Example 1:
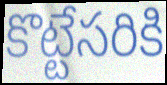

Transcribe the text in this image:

కొట్టేసరికి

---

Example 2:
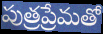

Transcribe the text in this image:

పుత్రప్రేమతో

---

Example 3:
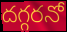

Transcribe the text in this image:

దగ్గరనో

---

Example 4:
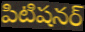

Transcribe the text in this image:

పిటిషనర్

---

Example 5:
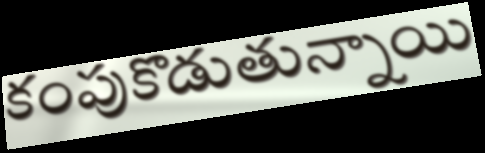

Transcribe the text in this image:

కంపుకొడుతున్నాయి